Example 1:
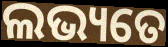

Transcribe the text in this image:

ଲଭ୍ୟତେ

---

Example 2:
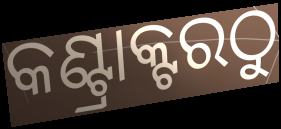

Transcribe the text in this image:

କଣ୍ଟ୍ରାକ୍ଟରଠୁ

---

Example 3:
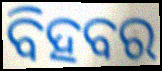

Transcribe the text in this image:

ବିହବର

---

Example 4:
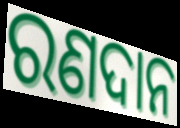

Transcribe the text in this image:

ରଣଦାନ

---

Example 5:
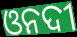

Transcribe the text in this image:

ଓନଦୀ